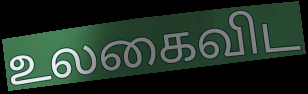
உலகைவிட